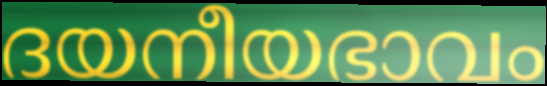
ദയനീയഭാവം